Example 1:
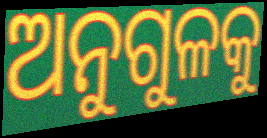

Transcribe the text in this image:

ଅନୁଗୁଳକୁ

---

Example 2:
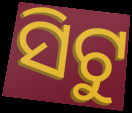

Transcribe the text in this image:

ସିଟୁ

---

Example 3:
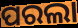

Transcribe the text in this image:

ପରଲା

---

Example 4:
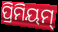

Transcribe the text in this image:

ପ୍ରିମିୟମ୍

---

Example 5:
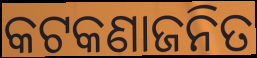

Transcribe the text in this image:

କଟକଣାଜନିତ